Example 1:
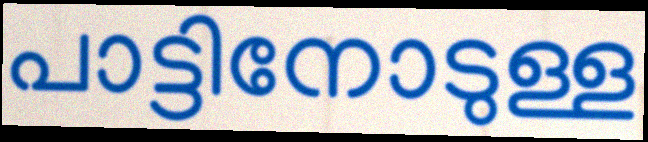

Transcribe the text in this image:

പാട്ടിനോടുള്ള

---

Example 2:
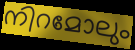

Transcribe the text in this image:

നിറമോലും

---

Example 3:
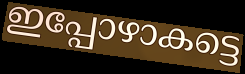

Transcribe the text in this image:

ഇപ്പോഴാകട്ടെ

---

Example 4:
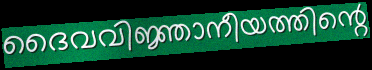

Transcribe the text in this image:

ദൈവവിജ്ഞാനീയത്തിന്റെ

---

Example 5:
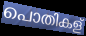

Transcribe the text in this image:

പൊതികള്